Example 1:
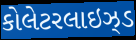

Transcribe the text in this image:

કોલેટરલાઇઝ્ડ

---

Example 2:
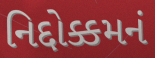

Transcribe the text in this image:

નિદ્દોક્કમનં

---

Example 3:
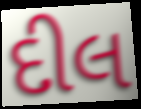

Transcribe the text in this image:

દીલ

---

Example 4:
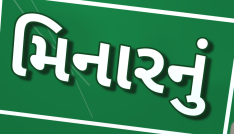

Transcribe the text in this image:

મિનારનું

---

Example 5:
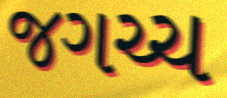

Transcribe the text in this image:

જગચ્ચ